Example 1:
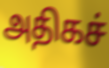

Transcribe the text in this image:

அதிகச்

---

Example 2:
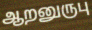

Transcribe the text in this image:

ஆறனுருபு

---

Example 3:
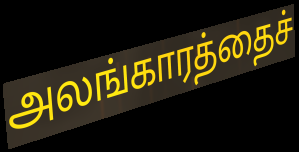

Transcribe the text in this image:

அலங்காரத்தைச்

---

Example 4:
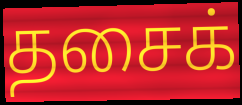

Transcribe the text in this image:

தசைக்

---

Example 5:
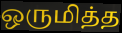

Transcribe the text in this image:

ஒருமித்த